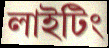
লাইটিং